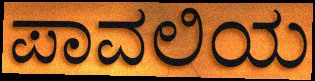
ಪಾವಲಿಯ